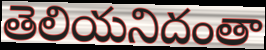
తెలియనిదంతా